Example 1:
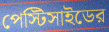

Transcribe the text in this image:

পেস্টিসাইডের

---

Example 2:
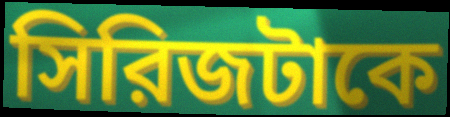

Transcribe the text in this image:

সিরিজটাকে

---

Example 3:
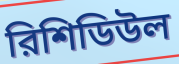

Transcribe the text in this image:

রিশিডিউল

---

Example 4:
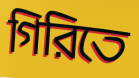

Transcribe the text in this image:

গিরিতে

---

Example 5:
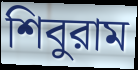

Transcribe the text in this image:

শিবুরাম